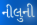
નીલુની